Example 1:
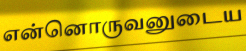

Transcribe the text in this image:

என்னொருவனுடைய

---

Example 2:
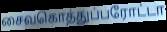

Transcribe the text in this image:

சைவகொத்துப்பரோட்டா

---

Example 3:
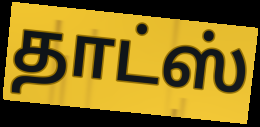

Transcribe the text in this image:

தாட்ஸ்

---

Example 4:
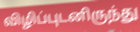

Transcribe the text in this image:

விழிப்புடனிருந்து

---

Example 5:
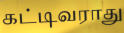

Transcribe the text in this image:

கட்டிவராது